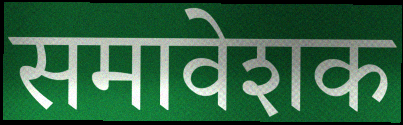
समावेशक